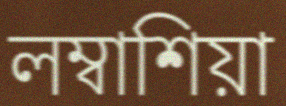
লম্বাশিয়া